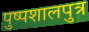
पुष्पशालपुत्र